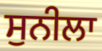
ਸੁਨੀਲਾ